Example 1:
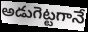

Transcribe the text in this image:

అడుగెట్టగానే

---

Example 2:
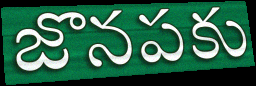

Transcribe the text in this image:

జొనపకు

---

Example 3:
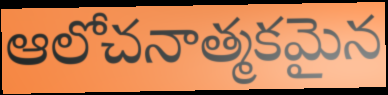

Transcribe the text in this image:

ఆలోచనాత్మకమైన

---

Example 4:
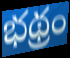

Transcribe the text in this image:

భథ్రం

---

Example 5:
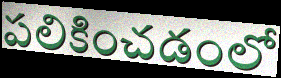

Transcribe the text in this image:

పలికించడంలో